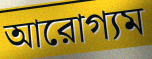
আরোগ্যম